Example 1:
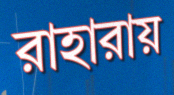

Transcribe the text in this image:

রাহারায়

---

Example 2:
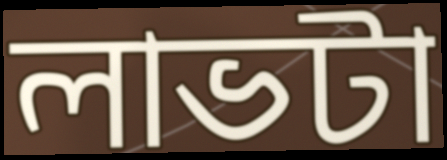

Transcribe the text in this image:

লাভটা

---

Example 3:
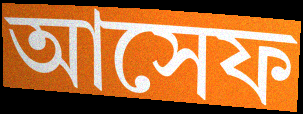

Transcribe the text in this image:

আসেফ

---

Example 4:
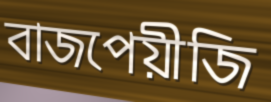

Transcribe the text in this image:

বাজপেয়ীজি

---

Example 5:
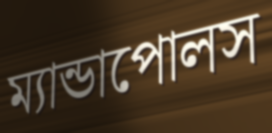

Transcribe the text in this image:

ম্যান্ডাপোলস